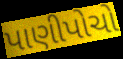
પાણીપોચો